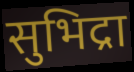
सुभिद्रा